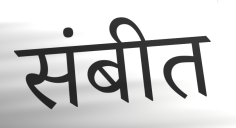
संबीत